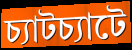
চ্যাটচ্যাটে